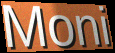
Moni